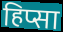
हिप्सा